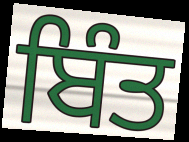
ਬਿੰਤ